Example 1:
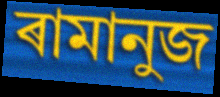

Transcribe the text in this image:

ৰামানুজ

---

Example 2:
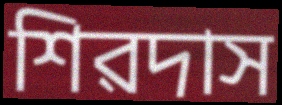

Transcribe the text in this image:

শিৱদাস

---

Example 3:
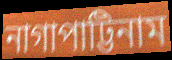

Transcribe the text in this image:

নাগাপাট্টিনাম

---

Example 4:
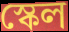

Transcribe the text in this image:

স্কেল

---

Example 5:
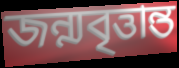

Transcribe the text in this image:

জন্মবৃত্তান্ত